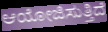
ಆಯೋಜಿಸುತ್ತಿದೆ